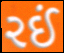
રઈં